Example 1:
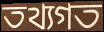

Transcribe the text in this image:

তথ্যগত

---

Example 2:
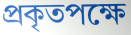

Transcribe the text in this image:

প্ৰকৃতপক্ষে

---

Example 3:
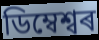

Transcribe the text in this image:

ডিম্বেশ্বৰ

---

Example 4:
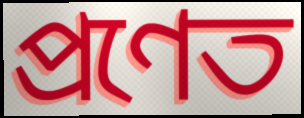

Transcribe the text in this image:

প্ৰণেত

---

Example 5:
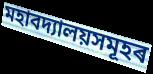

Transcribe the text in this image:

মহাবদ্যালয়সমূহৰ